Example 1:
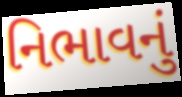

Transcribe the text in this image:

નિભાવનું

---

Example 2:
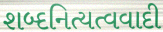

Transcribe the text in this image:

શબ્દનિત્યત્વવાદી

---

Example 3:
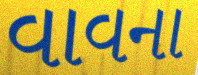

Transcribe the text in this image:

વાવના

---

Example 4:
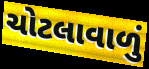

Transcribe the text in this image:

ચોટલાવાળું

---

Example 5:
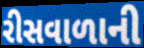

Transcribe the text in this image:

રીસવાળાની